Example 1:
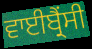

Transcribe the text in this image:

ਵਾਈਬ੍ਰੈਂਸੀ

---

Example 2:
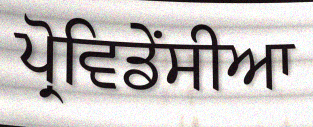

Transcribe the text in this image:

ਪ੍ਰੋਵਿਡੇਂਸੀਆ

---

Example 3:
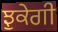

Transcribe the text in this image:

ਝੁਕੇਗੀ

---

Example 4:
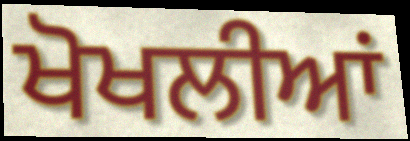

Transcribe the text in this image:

ਖੋਖਲੀਆਂ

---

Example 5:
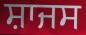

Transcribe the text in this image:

ਸ਼ਾਜਸ